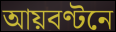
আয়বণ্টনে